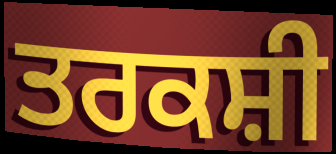
ਤਰਕਸ਼ੀ